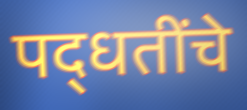
पद्धतींचे